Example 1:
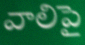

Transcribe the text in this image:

వాలిపై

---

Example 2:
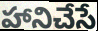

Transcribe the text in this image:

హానిచేసే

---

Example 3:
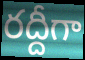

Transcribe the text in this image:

రద్దీగా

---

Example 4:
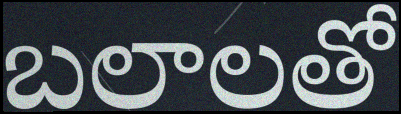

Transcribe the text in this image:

బలాలతో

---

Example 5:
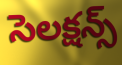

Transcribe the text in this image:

సెలక్షన్స్